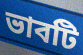
ভাবটি